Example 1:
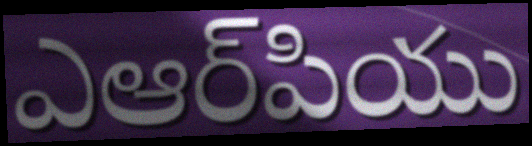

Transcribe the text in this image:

ఎఆర్‌పియు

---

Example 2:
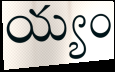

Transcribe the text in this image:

య్యం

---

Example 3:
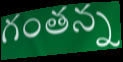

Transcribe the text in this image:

గంతన్న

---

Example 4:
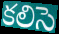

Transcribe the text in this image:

కలిసె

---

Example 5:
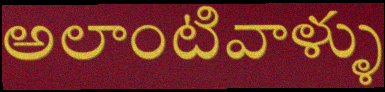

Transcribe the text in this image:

అలాంటివాళ్ళు